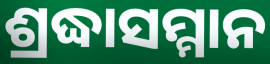
ଶ୍ରଦ୍ଧାସମ୍ମାନ